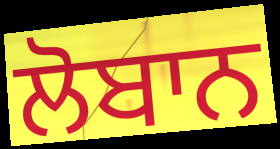
ਲੋਬਾਨ